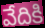
వేదికి